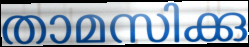
താമസിക്കു